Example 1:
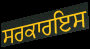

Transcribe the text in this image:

ਸਰਕਾਰਇਸ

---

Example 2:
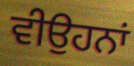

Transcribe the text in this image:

ਵੀਉਹਨਾਂ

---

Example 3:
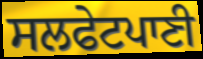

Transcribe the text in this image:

ਸਲਫੇਟਪਾਣੀ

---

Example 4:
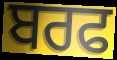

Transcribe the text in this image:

ਬਰਫ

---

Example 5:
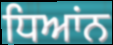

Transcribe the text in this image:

ਧਿਆਂਨ